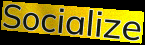
Socialize